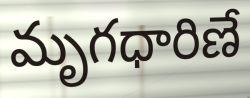
మృగధారిణే